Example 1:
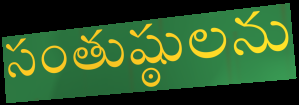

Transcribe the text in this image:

సంతుష్ఠులను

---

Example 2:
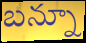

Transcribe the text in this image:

బన్నూ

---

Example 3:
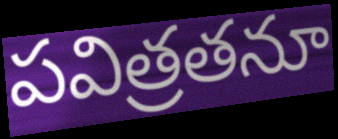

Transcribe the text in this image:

పవిత్రతనూ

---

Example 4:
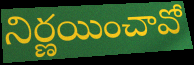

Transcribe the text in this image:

నిర్ణయించావో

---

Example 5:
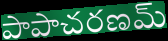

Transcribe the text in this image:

పాపాచరణమ్